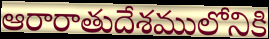
ఆరారాతుదేశములోనికి